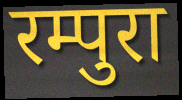
रम्पुरा